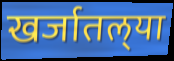
खर्जातल्या